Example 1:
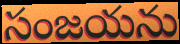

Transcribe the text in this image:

సంజయను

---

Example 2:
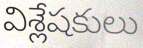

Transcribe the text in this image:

విశ్లేషకులు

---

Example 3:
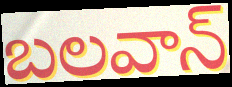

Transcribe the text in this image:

బలవాన్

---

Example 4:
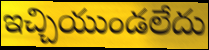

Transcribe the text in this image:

ఇచ్చియుండలేదు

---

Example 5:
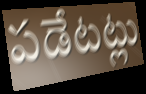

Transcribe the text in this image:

పడేటట్లు